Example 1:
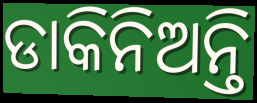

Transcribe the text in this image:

ଡାକିନିଅନ୍ତି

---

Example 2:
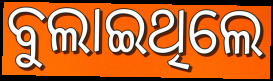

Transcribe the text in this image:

ବୁଲାଇଥିଲେ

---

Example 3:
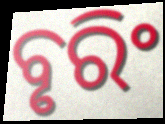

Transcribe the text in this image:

ବୃରିଂ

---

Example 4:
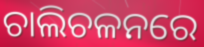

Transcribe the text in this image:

ଚାଲିଚଳନରେ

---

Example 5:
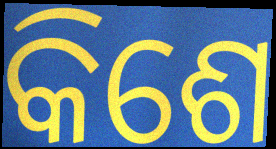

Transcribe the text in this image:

କିଶେ